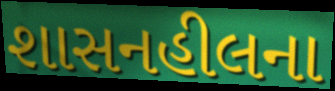
શાસનહીલના